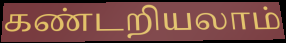
கண்டறியலாம்